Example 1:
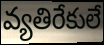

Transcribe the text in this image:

వ్యతిరేకులే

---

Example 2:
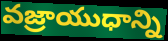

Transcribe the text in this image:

వజ్రాయుధాన్ని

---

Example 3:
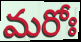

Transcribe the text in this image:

మరోః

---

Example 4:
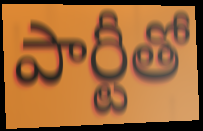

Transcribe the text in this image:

పార్టీతో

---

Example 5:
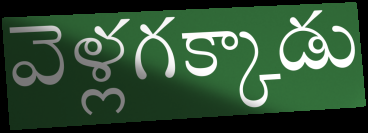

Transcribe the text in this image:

వెళ్లగక్కాడు